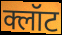
क्‍लॉट